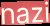
nazi